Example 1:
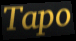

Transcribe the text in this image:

Tapo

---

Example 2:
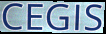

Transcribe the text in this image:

CEGIS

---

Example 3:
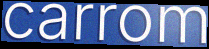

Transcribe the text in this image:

carrom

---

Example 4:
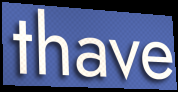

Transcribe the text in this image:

thave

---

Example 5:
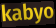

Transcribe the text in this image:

kabyo